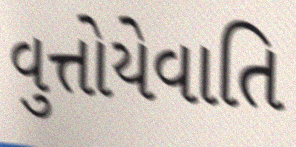
વુત્તોયેવાતિ